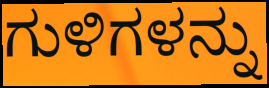
ಗುಳಿಗಳನ್ನು